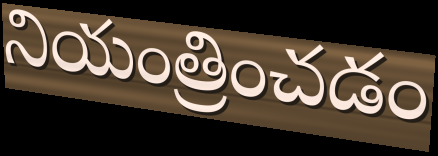
నియంత్రించడం